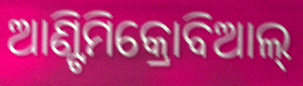
ଆଣ୍ଟିମିକ୍ରୋବିଆଲ୍